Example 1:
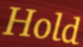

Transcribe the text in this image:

Hold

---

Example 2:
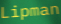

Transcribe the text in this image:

Lipman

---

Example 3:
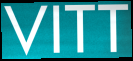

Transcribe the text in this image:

VITT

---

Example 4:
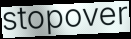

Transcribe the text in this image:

stopover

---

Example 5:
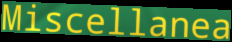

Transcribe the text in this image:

Miscellanea